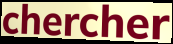
chercher